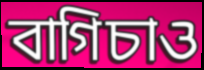
বাগিচাও